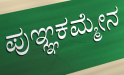
ಪುಞ್ಞಕಮ್ಮೇನ